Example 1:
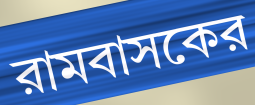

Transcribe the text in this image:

রামবাসকের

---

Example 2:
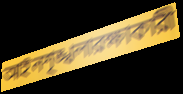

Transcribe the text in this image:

আইনশৃঙ্খলারক্ষাকারী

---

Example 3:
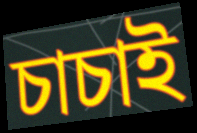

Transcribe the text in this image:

চাচাই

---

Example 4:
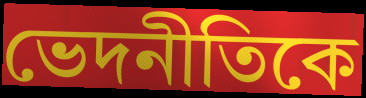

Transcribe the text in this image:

ভেদনীতিকে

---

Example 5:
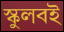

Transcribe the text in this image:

স্কুলবই